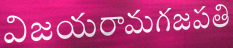
విజయరామగజపతి